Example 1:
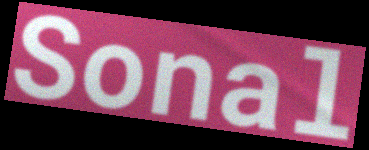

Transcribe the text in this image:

Sonal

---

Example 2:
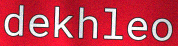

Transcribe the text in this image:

dekhleo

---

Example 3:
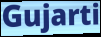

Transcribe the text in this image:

Gujarti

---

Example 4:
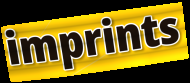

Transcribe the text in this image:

imprints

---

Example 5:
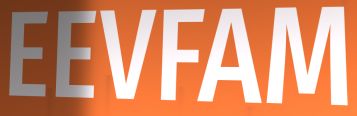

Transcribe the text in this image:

EEVFAM